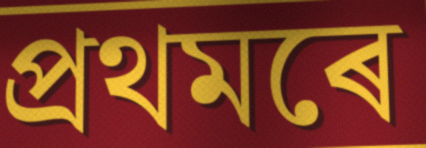
প্ৰথমৰে